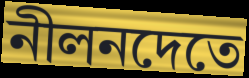
নীলনদেতে